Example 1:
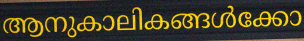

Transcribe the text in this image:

ആനുകാലികങ്ങൾക്കോ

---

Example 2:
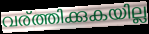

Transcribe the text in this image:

വര്ത്തിക്കുകയില്ല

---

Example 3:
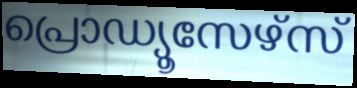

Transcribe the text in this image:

പ്രൊഡ്യൂസേഴ്സ്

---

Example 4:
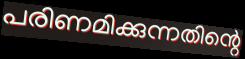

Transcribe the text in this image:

പരിണമിക്കുന്നതിന്റെ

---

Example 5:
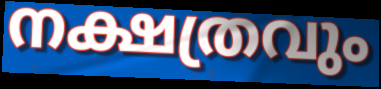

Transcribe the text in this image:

നക്ഷത്രവും